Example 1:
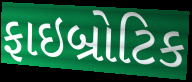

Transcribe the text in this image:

ફાઇબ્રોટિક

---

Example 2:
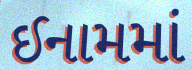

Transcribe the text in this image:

ઈનામમાં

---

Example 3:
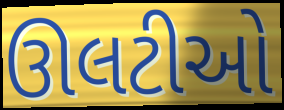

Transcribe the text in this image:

ઊલટીઓ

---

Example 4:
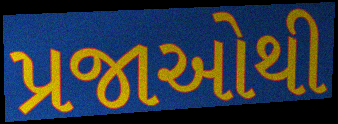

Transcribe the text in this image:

પ્રજાઓથી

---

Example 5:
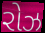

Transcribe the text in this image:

રોઝ